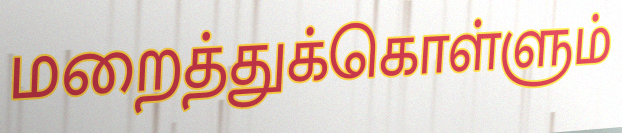
மறைத்துக்கொள்ளும்